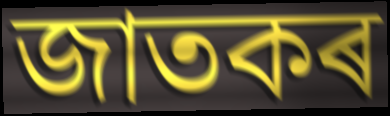
জাতকৰ